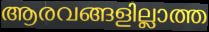
ആരവങ്ങളില്ലാത്ത